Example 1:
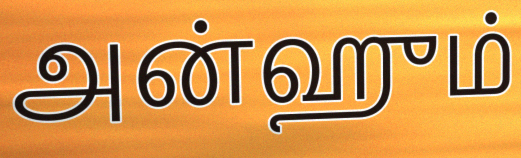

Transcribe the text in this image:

அன்ஹும்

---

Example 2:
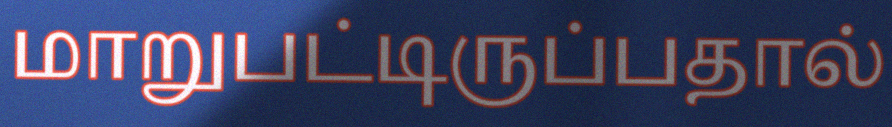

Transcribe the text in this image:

மாறுபட்டிருப்பதால்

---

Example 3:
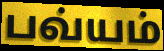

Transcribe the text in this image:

பவ்யம்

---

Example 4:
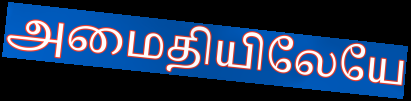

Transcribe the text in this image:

அமைதியிலேயே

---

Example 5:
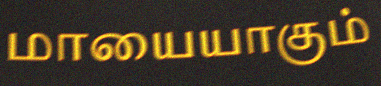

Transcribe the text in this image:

மாயையாகும்